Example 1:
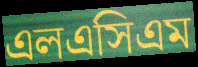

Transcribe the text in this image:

এলএসিএম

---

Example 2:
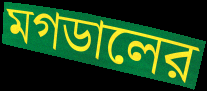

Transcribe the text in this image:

মগডালের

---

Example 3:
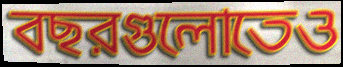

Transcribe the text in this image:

বছরগুলোতেও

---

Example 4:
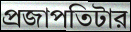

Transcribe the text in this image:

প্রজাপতিটার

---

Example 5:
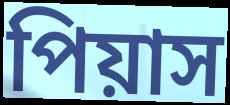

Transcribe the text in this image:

পিয়াস